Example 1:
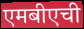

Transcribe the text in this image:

एमबीएची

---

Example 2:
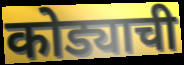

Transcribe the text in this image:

कोड्याची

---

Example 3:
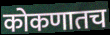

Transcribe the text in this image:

कोकणातच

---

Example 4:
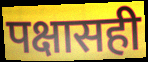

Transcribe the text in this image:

पक्षासही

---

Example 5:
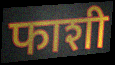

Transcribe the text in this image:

फाशी